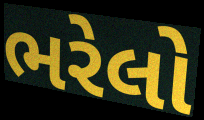
ભરેલો